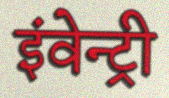
इंवेन्ट्री